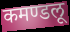
कमण्डलू